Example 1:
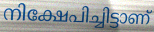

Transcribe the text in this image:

നിക്ഷേപിച്ചിട്ടാണ്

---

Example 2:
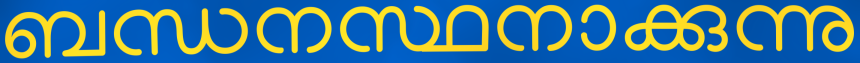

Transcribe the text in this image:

ബന്ധനസ്ഥനാക്കുന്നു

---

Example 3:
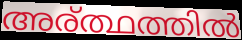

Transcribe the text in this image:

അര്ത്ഥത്തിൽ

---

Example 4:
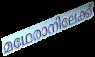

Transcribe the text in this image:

മഥേരാനിലേക്ക്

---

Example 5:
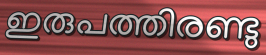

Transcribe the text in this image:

ഇരുപത്തിരണ്ടു